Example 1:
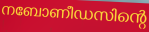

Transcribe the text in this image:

നബോണീഡസിന്റെ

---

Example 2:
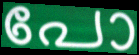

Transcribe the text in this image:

പോ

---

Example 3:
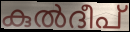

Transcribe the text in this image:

കുൽദീപ്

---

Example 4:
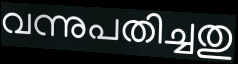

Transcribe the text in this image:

വന്നുപതിച്ചതു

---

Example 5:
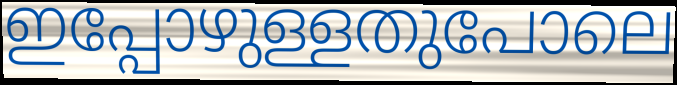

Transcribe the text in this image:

ഇപ്പോഴുള്ളതുപോലെ